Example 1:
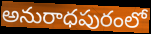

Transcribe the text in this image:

అనురాధపురంలో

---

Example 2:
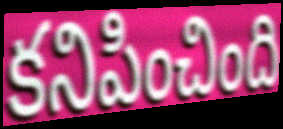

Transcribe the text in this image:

కనిపించింది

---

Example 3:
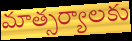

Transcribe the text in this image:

మాత్సర్యాలకు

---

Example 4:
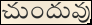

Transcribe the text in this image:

చుందువు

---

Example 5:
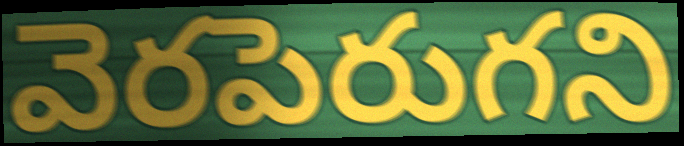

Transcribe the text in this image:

వెరపెరుగని